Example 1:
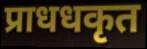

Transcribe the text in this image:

प्राधधकृत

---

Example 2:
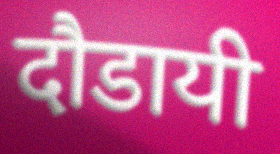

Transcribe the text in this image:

दौडायी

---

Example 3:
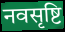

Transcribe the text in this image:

नवसृष्टि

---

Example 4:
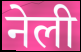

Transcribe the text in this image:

नेली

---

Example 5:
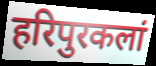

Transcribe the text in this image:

हरिपुरकलां